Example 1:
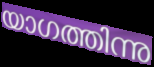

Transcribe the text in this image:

യാഗത്തിന്നു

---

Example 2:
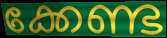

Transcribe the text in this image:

ക്കേണ്ട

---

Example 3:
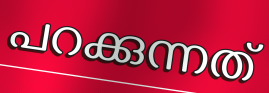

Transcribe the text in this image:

പറക്കുന്നത്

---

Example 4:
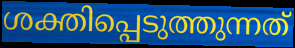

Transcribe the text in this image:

ശക്തിപ്പെടുത്തുന്നത്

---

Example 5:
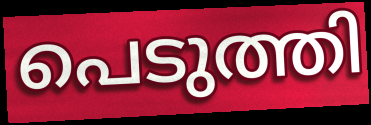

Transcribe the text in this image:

പെടുത്തി